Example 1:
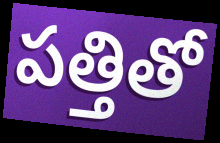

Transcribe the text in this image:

పత్తితో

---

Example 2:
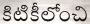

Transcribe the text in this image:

కిటికీలోంచి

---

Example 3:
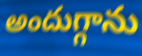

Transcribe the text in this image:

అందుగ్గాను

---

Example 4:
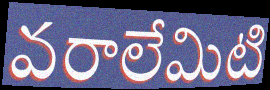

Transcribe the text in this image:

వరాలేమిటి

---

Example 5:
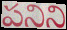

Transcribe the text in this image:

పనిని